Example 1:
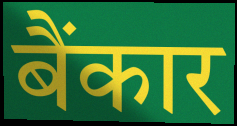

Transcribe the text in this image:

बैंकार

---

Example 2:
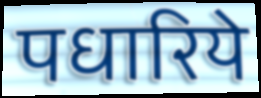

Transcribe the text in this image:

पधारिये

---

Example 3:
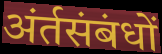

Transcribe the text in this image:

अंर्तसंबंधों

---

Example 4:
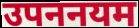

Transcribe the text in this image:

उपननयम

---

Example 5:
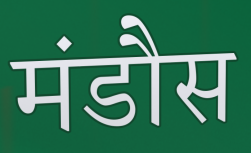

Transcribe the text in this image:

मंडौस